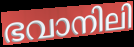
ഭവാനിലി